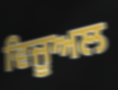
ਵਿਜੂਅਲ